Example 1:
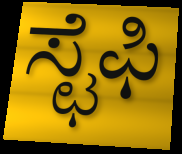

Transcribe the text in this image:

ಸ್ಟೆಫಿ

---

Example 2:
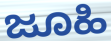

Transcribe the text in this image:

ಜೂಹಿ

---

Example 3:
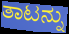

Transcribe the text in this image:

ತಾಟನ್ನು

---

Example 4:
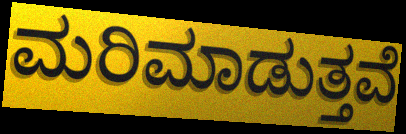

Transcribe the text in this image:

ಮರಿಮಾಡುತ್ತವೆ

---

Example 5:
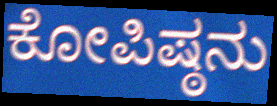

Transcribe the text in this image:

ಕೋಪಿಷ್ಠನು